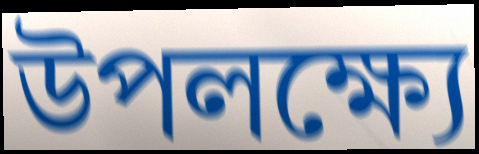
উপলক্ষ্যে